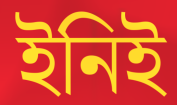
ইনিই